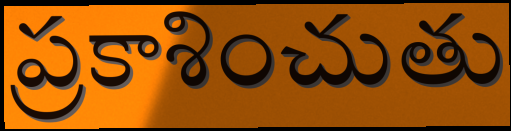
ప్రకాశించుతు